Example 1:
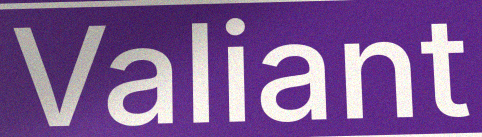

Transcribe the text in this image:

Valiant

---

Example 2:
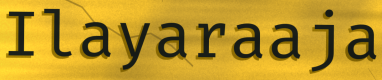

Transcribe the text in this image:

Ilayaraaja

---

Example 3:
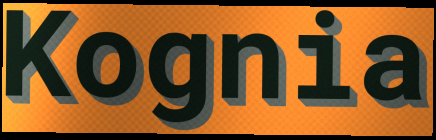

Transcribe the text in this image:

Kognia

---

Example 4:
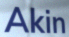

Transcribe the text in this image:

Akin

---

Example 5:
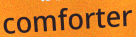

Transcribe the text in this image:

comforter